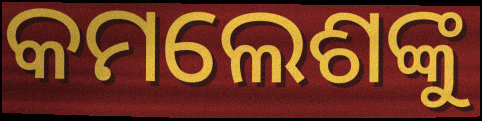
କମଲେଶଙ୍କୁ